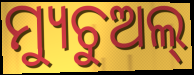
ମ୍ୟୁଚୁଅଲ୍